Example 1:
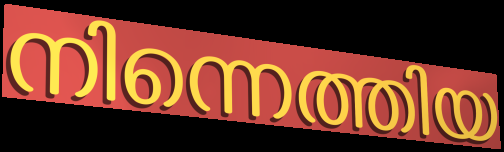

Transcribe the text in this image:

നിന്നെത്തിയ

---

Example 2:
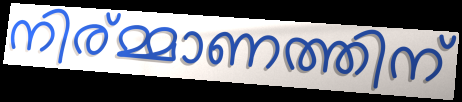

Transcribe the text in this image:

നിര്മ്മാണത്തിന്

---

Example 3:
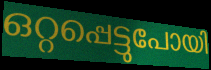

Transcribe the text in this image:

ഒറ്റപ്പെട്ടുപോയി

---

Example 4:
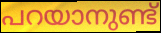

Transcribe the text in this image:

പറയാനുണ്ട്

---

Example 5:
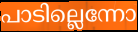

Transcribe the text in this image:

പാടില്ലെന്നോ